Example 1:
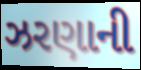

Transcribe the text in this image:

ઝરણાની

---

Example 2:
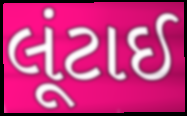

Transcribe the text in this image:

લૂંટાઈ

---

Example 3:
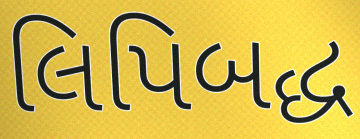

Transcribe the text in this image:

લિપિબદ્ધ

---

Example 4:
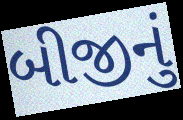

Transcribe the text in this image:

બીજીનું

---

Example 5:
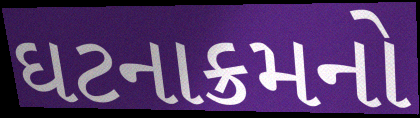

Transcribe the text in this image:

ઘટનાક્રમનો